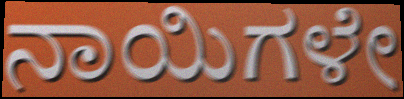
ನಾಯಿಗಳೇ